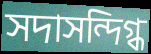
সদাসন্দিগ্ধ